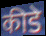
कीडे